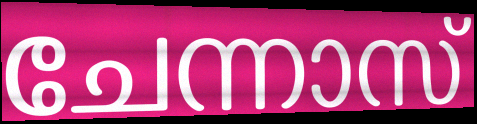
ചേന്നാസ്